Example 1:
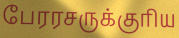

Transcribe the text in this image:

பேரரசருக்குரிய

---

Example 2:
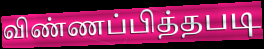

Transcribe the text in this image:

விண்ணப்பித்தபடி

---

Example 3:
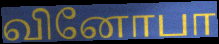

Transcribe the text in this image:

வினோபா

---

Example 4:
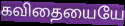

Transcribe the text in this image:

கவிதையையே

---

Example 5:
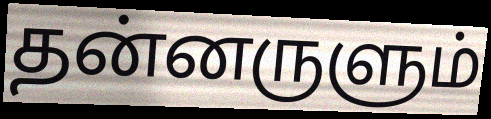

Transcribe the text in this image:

தன்னருளும்